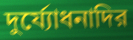
দুর্য্যোধনাদির